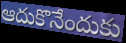
ఆదుకొనేందుకు